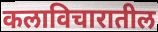
कलाविचारातील